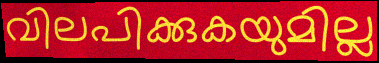
വിലപിക്കുകയുമില്ല